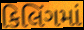
કિલિંગમાં